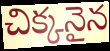
చిక్కనైన